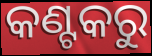
କଣ୍ଟକରୁ